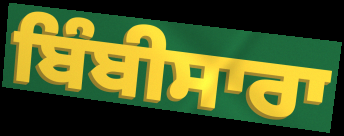
ਬਿੰਬੀਸਾਰਾ